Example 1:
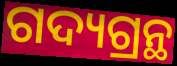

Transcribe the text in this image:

ଗଦ୍ୟଗ୍ରନ୍ଥ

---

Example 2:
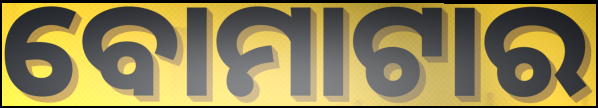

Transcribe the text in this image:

ବୋମାଟାର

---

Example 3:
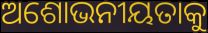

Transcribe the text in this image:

ଅଶୋଭନୀୟତାକୁ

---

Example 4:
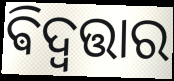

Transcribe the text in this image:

ଵିଦ୍ବତ୍ତାର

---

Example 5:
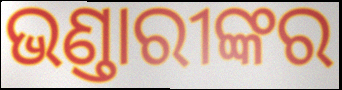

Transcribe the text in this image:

ଭଣ୍ଡାରୀଙ୍କର